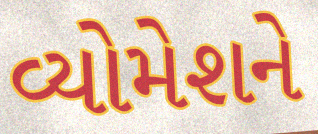
વ્યોમેશને